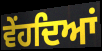
ਵੇਂਹਦਿਆਂ